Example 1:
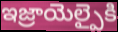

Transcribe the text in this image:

ఇజ్రాయెల్పైకి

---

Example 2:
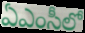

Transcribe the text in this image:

ఏఎంసీలో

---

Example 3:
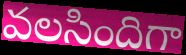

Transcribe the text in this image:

వలసిందిగా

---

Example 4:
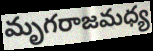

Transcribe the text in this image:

మృగరాజమధ్య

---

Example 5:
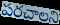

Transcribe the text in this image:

పరచాలని